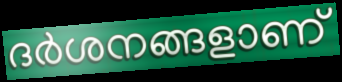
ദർശനങ്ങളാണ്